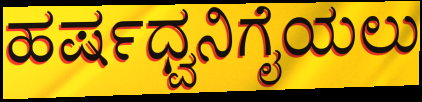
ಹರ್ಷಧ್ವನಿಗೈಯಲು